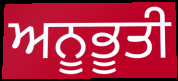
ਅਨੂਭੂਤੀ